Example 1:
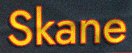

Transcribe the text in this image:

Skane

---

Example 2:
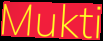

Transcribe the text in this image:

Mukti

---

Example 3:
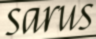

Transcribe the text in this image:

sarus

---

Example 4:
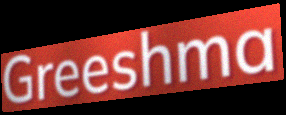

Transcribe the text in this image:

Greeshma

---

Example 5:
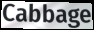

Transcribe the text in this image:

Cabbage